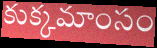
కుక్కమాంసం